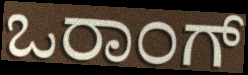
ಒರಾಂಗ್